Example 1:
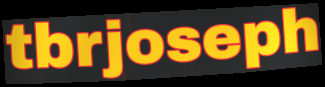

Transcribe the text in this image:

tbrjoseph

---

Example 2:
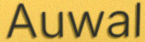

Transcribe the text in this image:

Auwal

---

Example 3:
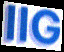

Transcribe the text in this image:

IIG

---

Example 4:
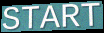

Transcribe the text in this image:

START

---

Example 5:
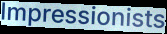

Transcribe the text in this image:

Impressionists